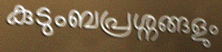
കുടുംബപ്രശ്നങ്ങളും